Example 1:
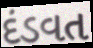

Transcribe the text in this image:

દંડવત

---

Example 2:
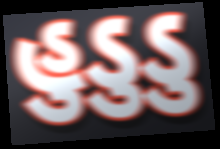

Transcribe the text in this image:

હુડુડુ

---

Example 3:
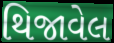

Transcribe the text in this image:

થિજાવેલ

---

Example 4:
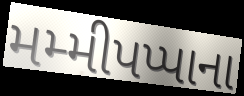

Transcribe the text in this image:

મમ્મીપપ્પાના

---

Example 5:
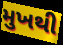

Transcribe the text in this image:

મુખથી